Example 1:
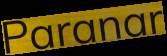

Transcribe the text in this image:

Paranar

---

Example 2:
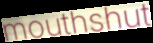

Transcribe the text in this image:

mouthshut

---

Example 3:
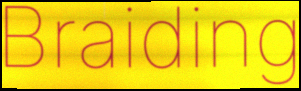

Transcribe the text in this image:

Braiding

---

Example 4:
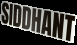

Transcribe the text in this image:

SIDDHANT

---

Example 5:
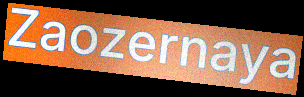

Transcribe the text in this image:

Zaozernaya